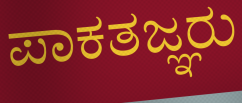
ಪಾಕತಜ್ಞರು